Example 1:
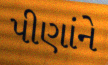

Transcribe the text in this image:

પીણાંને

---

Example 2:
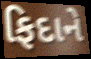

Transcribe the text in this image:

ફિદાને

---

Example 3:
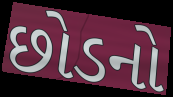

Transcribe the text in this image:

છોડનો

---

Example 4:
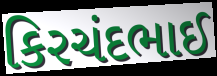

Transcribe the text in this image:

કિરચંદભાઈ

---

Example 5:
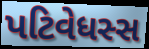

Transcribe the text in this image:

પટિવેધસ્સ